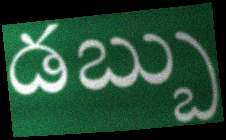
డబ్బు